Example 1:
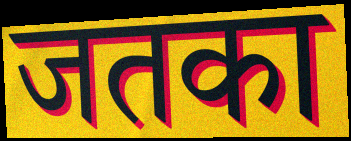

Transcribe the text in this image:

जतका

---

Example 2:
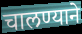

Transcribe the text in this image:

चालण्याने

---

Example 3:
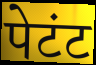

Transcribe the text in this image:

पेटंट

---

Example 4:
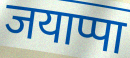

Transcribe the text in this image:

जयाप्पा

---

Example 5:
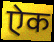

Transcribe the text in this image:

ऐक